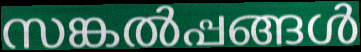
സങ്കൽപ്പങ്ങൾ